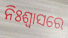
ନିଃଶ୍ଵାସରେ